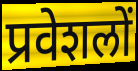
प्रवेशलों